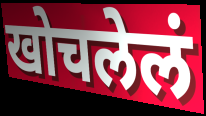
खोचलेलं